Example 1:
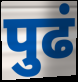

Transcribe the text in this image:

पुढं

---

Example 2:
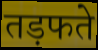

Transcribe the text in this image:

तड़फते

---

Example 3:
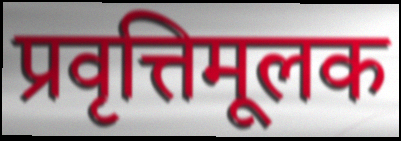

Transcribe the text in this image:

प्रवृत्तिमूलक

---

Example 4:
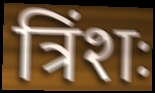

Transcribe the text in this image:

त्रिंशः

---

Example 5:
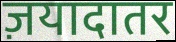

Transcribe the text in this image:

ज़यादातर